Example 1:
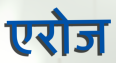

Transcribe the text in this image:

एरोज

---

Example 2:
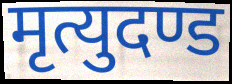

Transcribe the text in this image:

मृत्युदण्ड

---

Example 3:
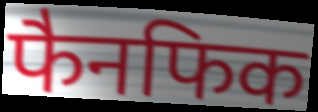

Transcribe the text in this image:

फैनफिक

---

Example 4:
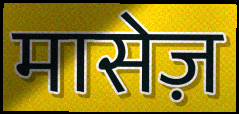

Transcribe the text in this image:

मासेज़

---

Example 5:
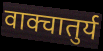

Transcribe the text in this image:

वाक्चातुर्य